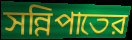
সন্নিপাতের